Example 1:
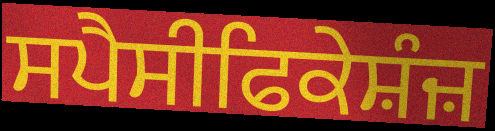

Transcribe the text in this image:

ਸਪੈਸੀਫਿਕੇਸ਼ੰਜ਼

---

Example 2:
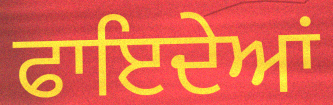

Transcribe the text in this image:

ਫਾਇਦੇਆਂ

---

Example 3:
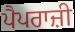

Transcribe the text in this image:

ਪੈਪਰਾਜ਼ੀ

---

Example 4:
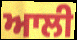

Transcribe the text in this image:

ਆਲੀ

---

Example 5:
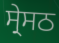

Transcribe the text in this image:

ਸ੍ਰੇਸਠ